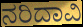
ನರಿದಾವಿ